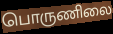
பொருணிலை